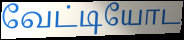
வேட்டியோட